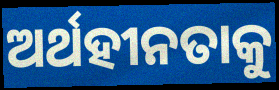
ଅର୍ଥହୀନତାକୁ